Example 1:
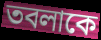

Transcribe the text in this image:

তবলাকে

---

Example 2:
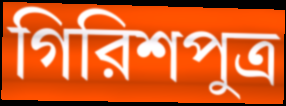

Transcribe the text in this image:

গিরিশপুত্র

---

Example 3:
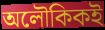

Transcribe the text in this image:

অলৌকিকই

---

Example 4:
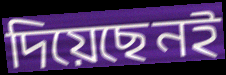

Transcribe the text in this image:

দিয়েছেনই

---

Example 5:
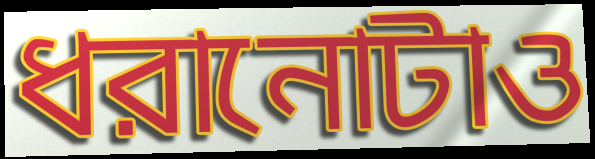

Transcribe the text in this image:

ধরানোটাও